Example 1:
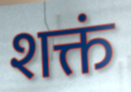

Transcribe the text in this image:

शक्तं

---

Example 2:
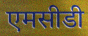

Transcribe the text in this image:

एमसीडी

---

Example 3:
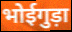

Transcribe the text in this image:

भोईगुड़ा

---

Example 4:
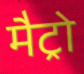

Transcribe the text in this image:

मैट्रो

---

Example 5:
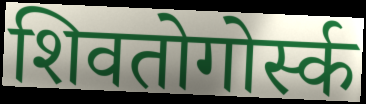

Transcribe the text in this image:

शिवतोगोर्स्क